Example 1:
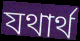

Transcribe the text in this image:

যথার্থ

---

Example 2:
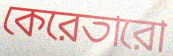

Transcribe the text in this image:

কেরেতারো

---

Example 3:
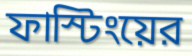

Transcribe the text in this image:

ফাস্টিংয়ের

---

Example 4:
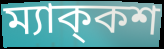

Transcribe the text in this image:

ম্যাক্‌কশ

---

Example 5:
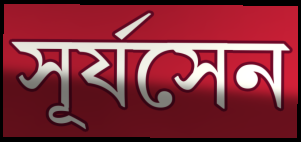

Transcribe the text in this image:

সূর্যসেন